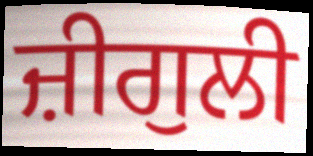
ਜ਼ੀਗੁਲੀ